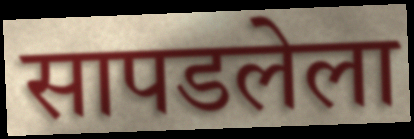
सापडलेला